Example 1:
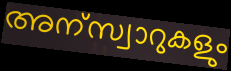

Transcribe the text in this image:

അന്സ്വാറുകളും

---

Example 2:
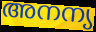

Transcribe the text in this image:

അനന്യ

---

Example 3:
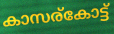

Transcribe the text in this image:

കാസര്കോട്ട്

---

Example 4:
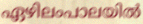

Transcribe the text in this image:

ഏഴിലംപാലയിൽ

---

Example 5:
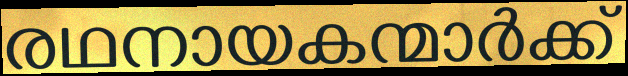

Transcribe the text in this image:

രഥനായകന്മാർക്ക്